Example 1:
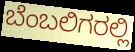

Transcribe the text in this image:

ಬೆಂಬಲಿಗರಲ್ಲಿ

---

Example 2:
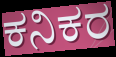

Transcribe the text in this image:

ಕನಿಕರ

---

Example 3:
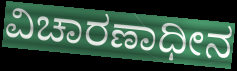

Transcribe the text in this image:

ವಿಚಾರಣಾಧೀನ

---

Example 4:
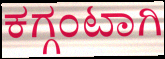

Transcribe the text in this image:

ಕಗ್ಗಂಟಾಗಿ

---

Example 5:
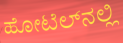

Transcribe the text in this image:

ಹೋಟೆಲ್‌ನಲ್ಲಿ